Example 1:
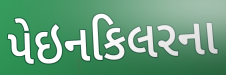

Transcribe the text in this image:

પેઇનકિલરના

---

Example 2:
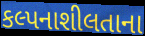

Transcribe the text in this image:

કલ્પનાશીલતાના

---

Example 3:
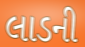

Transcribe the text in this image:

લાડની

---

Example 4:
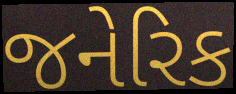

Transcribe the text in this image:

જનેરિક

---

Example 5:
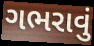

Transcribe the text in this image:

ગભરાવું